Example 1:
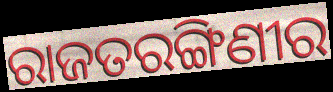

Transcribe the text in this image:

ରାଜତରଙ୍ଗିଣୀର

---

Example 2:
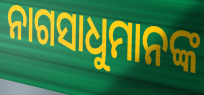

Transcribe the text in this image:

ନାଗସାଧୁମାନଙ୍କ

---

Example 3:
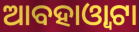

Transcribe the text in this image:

ଆବହାଓ୍ୱାଟା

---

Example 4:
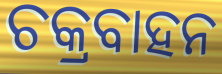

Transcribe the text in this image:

ଚକ୍ରବାହନ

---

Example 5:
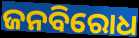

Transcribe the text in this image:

ଜନବିରୋଧ